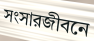
সংসারজীবনে